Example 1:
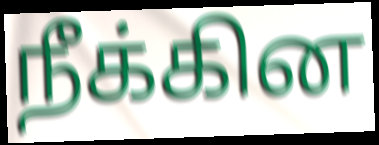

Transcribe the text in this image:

நீக்கின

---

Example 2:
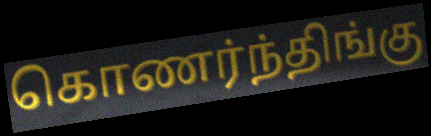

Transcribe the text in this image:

கொணர்ந்திங்கு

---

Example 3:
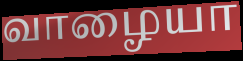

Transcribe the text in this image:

வாழையா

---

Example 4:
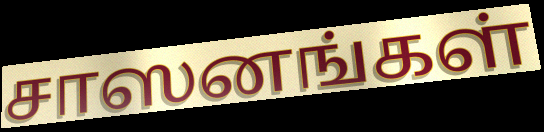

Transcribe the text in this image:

சாஸனங்கள்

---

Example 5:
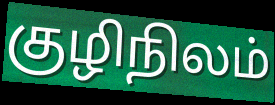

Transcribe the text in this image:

குழிநிலம்